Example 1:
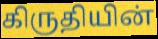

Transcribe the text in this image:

கிருதியின்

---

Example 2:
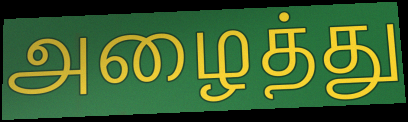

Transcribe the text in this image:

அழைத்து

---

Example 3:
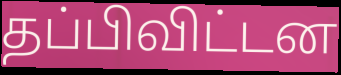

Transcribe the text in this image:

தப்பிவிட்டன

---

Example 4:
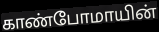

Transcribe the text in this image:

காண்போமாயின்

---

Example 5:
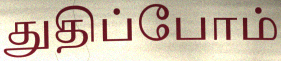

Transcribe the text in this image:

துதிப்போம்